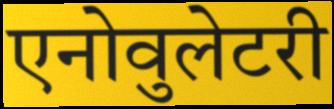
एनोवुलेटरी